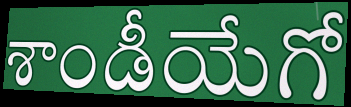
శాండీయేగో